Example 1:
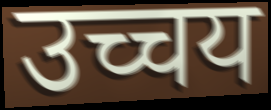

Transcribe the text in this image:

उच्चय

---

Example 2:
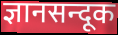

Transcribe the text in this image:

ज्ञानसन्दूक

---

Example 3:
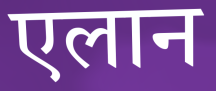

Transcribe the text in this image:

एलान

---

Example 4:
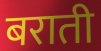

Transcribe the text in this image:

बराती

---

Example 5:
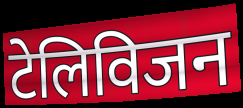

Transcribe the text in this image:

टेलिविजन